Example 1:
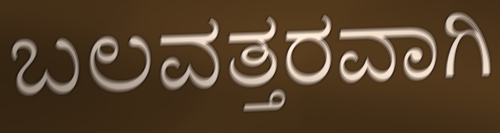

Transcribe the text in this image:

ಬಲವತ್ತರವಾಗಿ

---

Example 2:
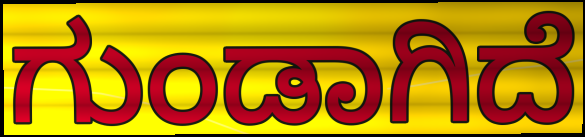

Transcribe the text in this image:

ಗುಂಡಾಗಿದೆ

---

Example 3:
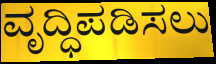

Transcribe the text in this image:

ವೃದ್ಧಿಪಡಿಸಲು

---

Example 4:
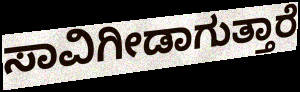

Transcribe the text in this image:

ಸಾವಿಗೀಡಾಗುತ್ತಾರೆ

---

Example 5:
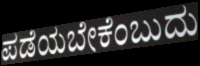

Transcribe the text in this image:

ಪಡೆಯಬೇಕೆಂಬುದು